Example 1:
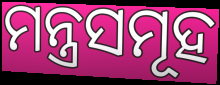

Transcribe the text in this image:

ମନ୍ତ୍ରସମୂହ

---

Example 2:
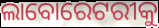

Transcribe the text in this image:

ଲାବୋରେଟରୀକୁ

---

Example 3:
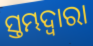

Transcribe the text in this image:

ସ୍ତମ୍ଭଦ୍ୱାରା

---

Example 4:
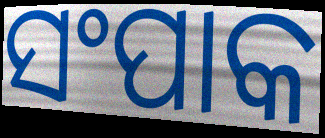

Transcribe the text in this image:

ସଂପାକ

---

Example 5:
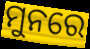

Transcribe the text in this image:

ମୁନରେ